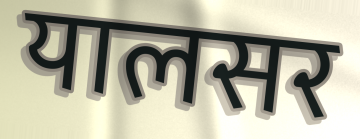
यालसर